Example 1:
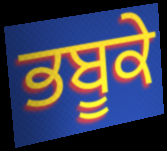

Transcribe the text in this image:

ਭਬੂਕੇ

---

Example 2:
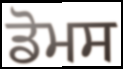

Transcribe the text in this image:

ਡੋਮਸ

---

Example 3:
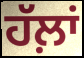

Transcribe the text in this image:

ਹੱਲ਼ਾਂ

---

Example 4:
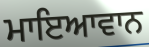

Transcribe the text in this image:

ਮਾਇਆਵਾਨ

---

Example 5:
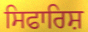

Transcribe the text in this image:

ਸਿਫਾਰਿਸ਼